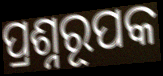
ପ୍ରଶ୍ନରୂପକ